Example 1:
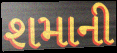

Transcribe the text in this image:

શમાની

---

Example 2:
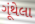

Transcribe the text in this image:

ગૂંથેલા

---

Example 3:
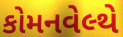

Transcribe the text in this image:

કોમનવેલ્થે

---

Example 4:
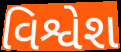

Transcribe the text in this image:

વિશ્વેશ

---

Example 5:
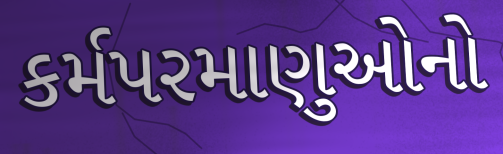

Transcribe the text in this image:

કર્મપરમાણુઓનો